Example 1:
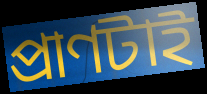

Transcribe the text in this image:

প্রাণটাই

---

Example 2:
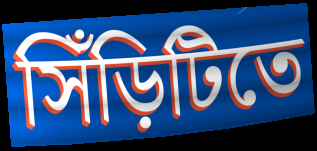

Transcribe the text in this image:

সিঁড়িটিতে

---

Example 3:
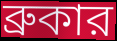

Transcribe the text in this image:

ব্রুকার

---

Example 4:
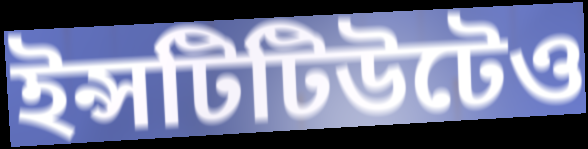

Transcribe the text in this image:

ইন্সটিটিউটেও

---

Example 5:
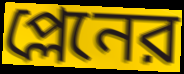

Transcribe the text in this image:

প্লেনের